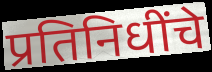
प्रतिनिधींचे